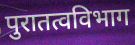
पुरातत्वविभाग